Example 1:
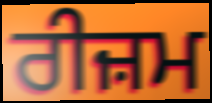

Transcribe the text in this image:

ਰੀਜ਼ਮ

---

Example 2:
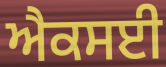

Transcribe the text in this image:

ਐਕਸਈ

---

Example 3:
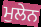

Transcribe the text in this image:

ਮੁਲੇਨ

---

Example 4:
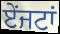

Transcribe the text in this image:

ਏਂਜਟਾਂ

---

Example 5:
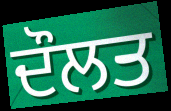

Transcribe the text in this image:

ਦੌਲਤ